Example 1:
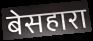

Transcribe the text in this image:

बेसहारा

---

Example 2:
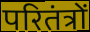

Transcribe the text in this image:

परितंत्रों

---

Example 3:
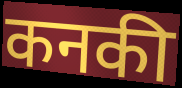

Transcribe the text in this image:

कनकी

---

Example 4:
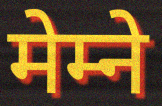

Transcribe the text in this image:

मेम्ने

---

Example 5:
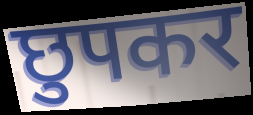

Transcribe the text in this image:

छुपकर